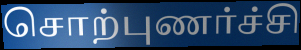
சொற்புணர்ச்சி